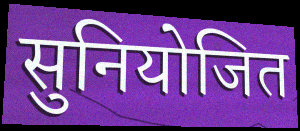
सुनियोजित